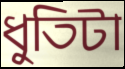
ধুতিটা